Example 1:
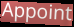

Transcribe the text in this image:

Appoint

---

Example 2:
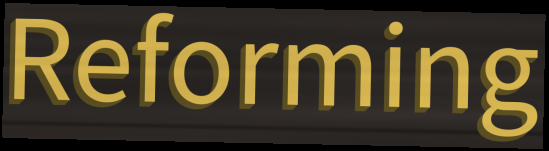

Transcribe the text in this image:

Reforming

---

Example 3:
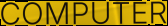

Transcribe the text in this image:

COMPUTER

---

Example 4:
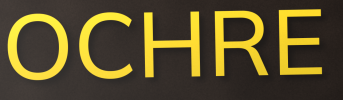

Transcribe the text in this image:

OCHRE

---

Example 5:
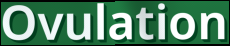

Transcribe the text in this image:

Ovulation